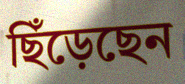
ছিঁড়েছেন